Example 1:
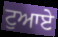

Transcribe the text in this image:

ਟੁਆਏ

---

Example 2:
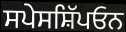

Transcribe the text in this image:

ਸਪੇਸਸ਼ਿੱਪਓਨ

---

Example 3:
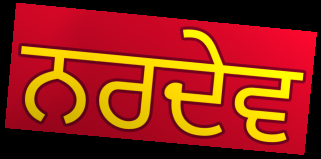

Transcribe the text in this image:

ਨਰਦੇਵ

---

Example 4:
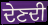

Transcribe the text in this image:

ਦੇਣਦੀ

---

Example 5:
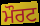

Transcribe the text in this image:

ਮੌਰਟ